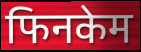
फिनकेम